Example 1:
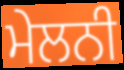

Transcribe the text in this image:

ਮੇਲਨੀ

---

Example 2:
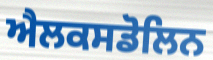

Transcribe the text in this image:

ਐਲਕਸਡੋਲਿਨ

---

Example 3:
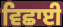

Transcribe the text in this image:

ਵਿਛਾਈ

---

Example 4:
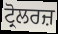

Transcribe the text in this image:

ਟ੍ਰੋਲਰਜ਼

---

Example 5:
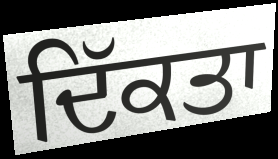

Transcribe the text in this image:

ਦਿੱਕਤਾ